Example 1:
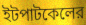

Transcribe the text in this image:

ইটপাটকেলের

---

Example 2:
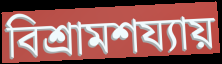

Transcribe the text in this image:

বিশ্রামশয্যায়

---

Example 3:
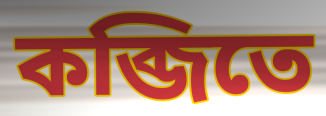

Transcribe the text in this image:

কব্জিতে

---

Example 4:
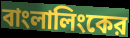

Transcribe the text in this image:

বাংলালিংকের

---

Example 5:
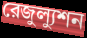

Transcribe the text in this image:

রেজুল্যুশন